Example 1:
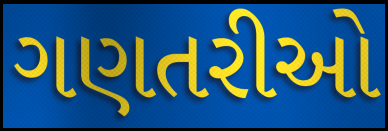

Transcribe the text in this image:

ગણતરીઓ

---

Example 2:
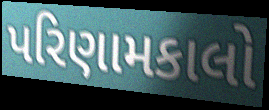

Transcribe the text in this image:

પરિણામકાલો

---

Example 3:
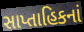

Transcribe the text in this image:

સાપ્તાહિકનાં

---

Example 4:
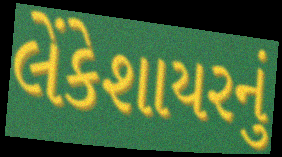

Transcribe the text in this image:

લેંકેશાયરનું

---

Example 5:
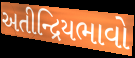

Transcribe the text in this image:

અતીન્દ્રિયભાવો